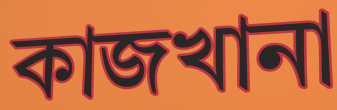
কাজখানা